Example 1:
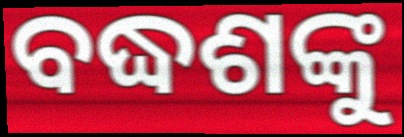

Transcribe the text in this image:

ବଦ୍ଧଶଙ୍କୁ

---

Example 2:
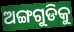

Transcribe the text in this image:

ଅଙ୍ଗଗୁଡିକୁ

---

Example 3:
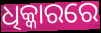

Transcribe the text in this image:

ଧିକ୍କାରରେ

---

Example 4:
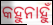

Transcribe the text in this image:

କହୁନାହୁଁ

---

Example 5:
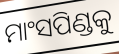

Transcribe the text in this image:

ମାଂସପିଣ୍ଡକୁ